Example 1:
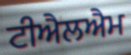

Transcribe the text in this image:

ਟੀਐਲਐਮ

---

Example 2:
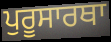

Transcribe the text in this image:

ਪੁਰੂਸਾਰਥਾ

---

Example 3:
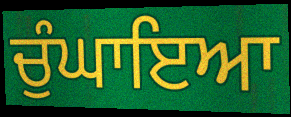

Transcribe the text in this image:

ਚੁੰਘਾਇਆ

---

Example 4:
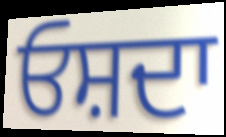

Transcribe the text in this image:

ਓਸ਼ਦਾ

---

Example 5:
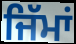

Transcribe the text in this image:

ਜਿੱਮਾਂ